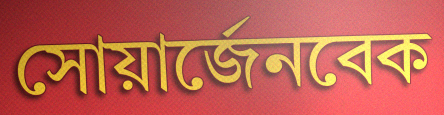
সোয়ার্জেনবেক